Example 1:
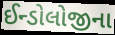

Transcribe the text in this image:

ઈન્ડોલોજીના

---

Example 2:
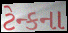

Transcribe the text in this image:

ટેન્કના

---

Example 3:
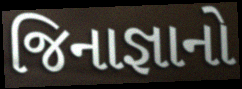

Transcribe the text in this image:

જિનાજ્ઞાનો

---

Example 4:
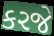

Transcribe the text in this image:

કરજે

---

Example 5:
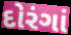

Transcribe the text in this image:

દોરંગાં